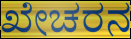
ಖೇಚರನ